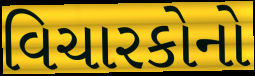
વિચારકોનો